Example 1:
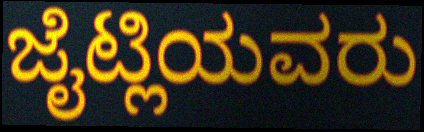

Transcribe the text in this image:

ಜೈಟ್ಲಿಯವರು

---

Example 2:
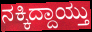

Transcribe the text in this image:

ನಕ್ಕಿದ್ದಾಯ್ತು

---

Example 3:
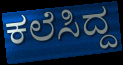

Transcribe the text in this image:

ಕಲೆಸಿದ್ದ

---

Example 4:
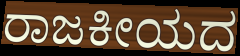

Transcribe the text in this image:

ರಾಜಕೀಯದ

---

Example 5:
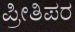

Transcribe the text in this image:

ಪ್ರೀತಿಪರ